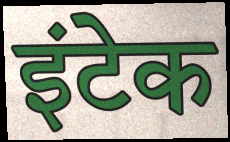
इंटेक